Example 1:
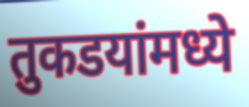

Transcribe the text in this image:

तुकडयांमध्ये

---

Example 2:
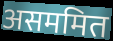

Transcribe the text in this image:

असममित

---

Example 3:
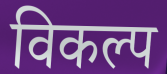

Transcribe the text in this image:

विकल्प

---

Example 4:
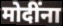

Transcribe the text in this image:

मोदींना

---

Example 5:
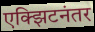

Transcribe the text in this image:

एक्झिटनंतर